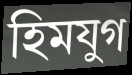
হিমযুগ